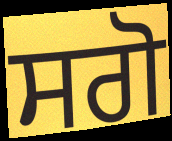
ਸਗੋ